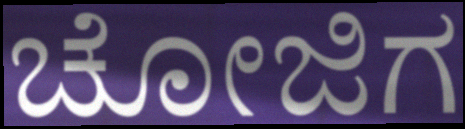
ಚೋಜಿಗ